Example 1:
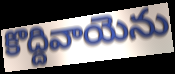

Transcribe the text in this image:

కొద్దివాయెను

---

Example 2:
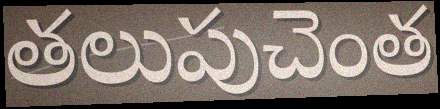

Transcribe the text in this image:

తలుపుచెంత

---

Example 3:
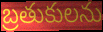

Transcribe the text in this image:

బ్రతుకులను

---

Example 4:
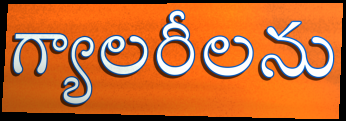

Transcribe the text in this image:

గ్యాలరీలను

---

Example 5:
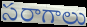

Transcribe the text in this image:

సరాగాలు